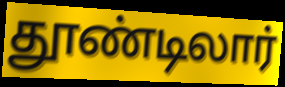
தூண்டிலார்